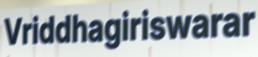
Vriddhagiriswarar